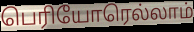
பெரியோரெல்லாம்